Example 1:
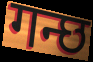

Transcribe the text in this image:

गन्छ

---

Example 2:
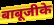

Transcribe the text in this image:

बाबूजीके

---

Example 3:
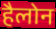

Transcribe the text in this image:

हैलोन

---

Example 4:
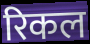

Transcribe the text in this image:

रिकल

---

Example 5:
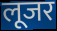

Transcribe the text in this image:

लूजर